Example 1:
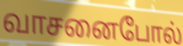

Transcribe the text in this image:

வாசனைபோல்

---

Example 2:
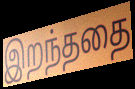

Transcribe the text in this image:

இறந்ததை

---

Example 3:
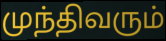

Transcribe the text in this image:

முந்திவரும்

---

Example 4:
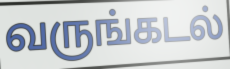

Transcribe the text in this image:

வருங்கடல்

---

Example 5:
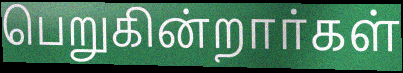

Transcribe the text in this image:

பெறுகின்றார்கள்